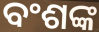
ବଂଶଙ୍କ